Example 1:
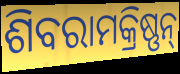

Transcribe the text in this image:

ଶିବରାମକ୍ରିଷ୍ଣନ୍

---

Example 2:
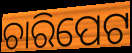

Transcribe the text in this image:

ଚାରିପେଟ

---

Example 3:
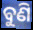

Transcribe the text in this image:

ବୁଣି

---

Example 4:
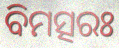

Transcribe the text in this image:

ବିମତ୍ସରଃ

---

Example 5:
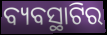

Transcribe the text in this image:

ବ୍ୟବସ୍ଥାଟିର